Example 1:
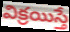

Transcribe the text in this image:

విక్రయిస్తే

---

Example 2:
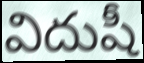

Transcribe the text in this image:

విదుషీ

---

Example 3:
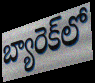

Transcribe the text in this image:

బ్యారెక్‌లో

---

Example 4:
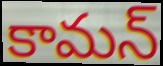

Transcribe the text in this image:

కామన్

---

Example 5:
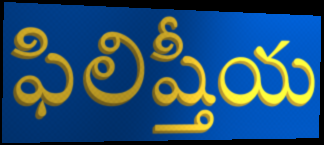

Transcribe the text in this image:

ఫిలిష్తీయ